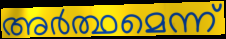
അർത്ഥമെന്ന്